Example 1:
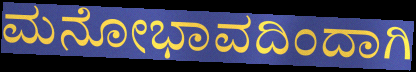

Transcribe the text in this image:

ಮನೋಭಾವದಿಂದಾಗಿ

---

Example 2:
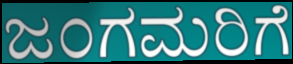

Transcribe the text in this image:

ಜಂಗಮರಿಗೆ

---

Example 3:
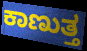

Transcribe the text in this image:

ಕಾಣುತ್ತ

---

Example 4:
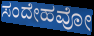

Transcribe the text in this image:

ಸಂದೇಹವೋ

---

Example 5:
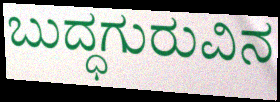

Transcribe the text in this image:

ಬುದ್ಧಗುರುವಿನ